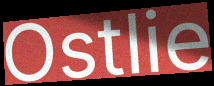
Ostlie